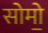
सोमो॒